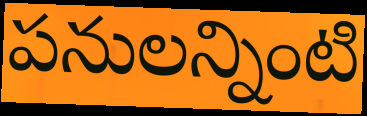
పనులన్నింటి